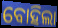
ବୋହିଲା